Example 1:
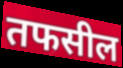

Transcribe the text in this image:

तफसील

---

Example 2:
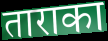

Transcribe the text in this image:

ताराका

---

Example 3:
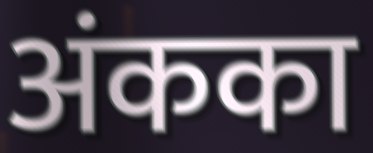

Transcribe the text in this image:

अंकका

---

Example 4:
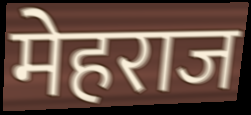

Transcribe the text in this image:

मेहराज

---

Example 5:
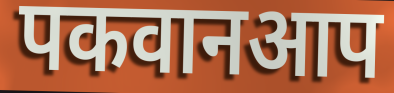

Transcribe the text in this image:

पकवानआप